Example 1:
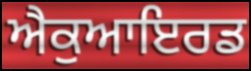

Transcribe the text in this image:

ਐਕੁਆਇਰਡ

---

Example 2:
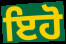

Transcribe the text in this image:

ਇਹੋ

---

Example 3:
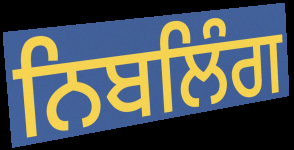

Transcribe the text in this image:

ਨਿਬਲਿੰਗ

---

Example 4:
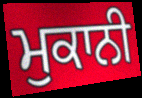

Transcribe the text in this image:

ਮੁਕਾਨੀ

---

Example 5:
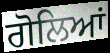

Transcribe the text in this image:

ਗੋਲਿਆਂ